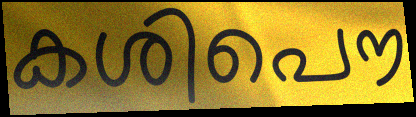
കശിപൌ